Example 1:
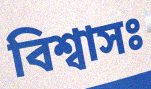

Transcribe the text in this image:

বিশ্বাসঃ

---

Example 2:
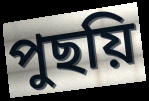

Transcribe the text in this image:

পুছয়ি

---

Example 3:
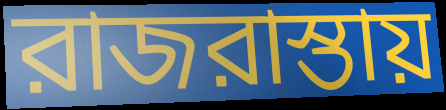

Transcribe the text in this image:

রাজরাস্তায়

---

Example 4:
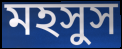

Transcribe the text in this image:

মহসুস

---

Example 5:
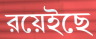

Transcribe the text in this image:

রয়েইছে